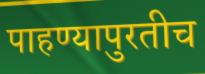
पाहण्यापुरतीच